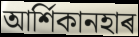
আৰ্শিকানহাৰ